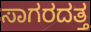
ಸಾಗರದತ್ತ